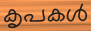
കൃപകൾ